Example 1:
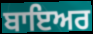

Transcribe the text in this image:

ਬਾਇਅਰ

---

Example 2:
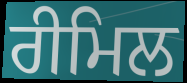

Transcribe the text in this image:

ਰੀਮਿਲ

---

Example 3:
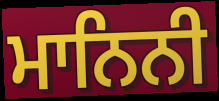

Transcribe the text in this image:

ਮਾਨਿਨੀ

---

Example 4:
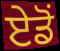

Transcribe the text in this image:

ਏਡੋਂ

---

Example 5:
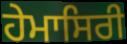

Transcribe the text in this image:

ਹੇਮਾਸਿਰੀ